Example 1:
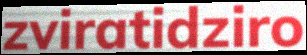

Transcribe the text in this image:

zviratidziro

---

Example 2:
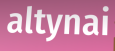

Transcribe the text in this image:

altynai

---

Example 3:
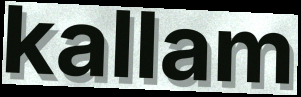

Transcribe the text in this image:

kallam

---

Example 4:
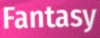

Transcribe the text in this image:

Fantasy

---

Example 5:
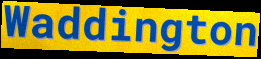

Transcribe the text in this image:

Waddington